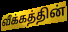
வீக்கத்தின்